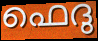
ഫെദു